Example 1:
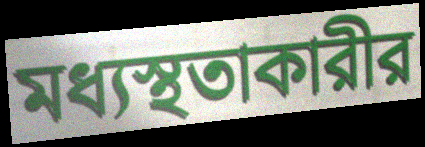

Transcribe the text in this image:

মধ্যস্থতাকারীর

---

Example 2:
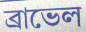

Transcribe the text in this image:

ব্রাভেল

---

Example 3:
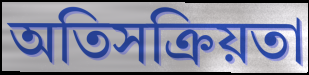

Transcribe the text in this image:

অতিসক্রিয়তা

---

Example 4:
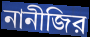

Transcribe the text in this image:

নানীজির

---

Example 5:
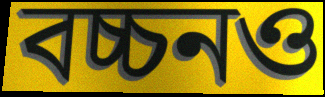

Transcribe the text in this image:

বচ্চনও